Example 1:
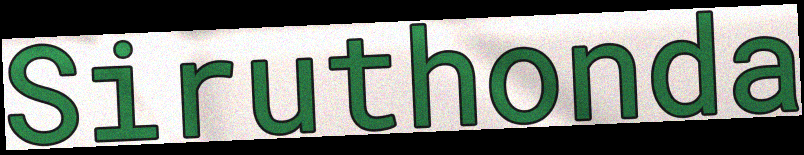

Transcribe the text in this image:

Siruthonda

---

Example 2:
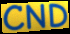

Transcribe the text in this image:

CND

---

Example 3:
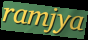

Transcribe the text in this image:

ramjya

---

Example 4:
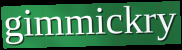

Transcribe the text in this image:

gimmickry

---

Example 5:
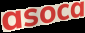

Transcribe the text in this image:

asoca